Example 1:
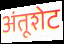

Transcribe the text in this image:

अंतूशेट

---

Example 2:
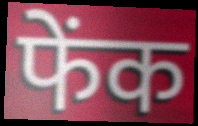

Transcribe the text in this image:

फेंक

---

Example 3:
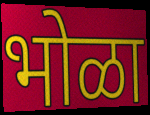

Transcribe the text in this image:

भोळा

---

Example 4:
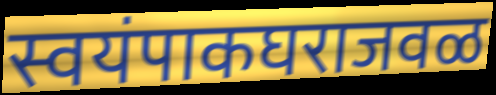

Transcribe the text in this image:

स्वयंपाकघराजवळ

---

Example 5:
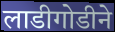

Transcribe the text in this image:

लाडीगोडीने